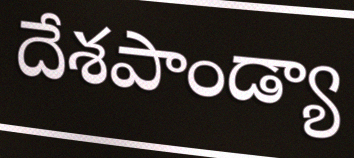
దేశపాండ్యా